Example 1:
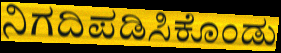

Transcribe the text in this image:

ನಿಗದಿಪಡಿಸಿಕೊಂಡು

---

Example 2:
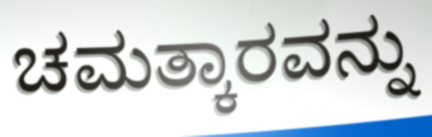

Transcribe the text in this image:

ಚಮತ್ಕಾರವನ್ನು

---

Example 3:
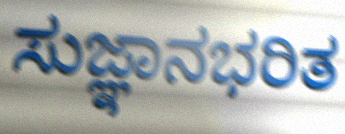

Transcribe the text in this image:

ಸುಜ್ಞಾನಭರಿತ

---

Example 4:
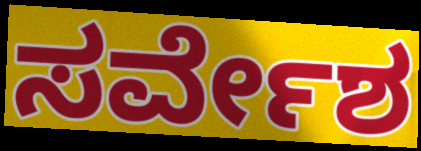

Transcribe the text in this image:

ಸರ್ವೇಶ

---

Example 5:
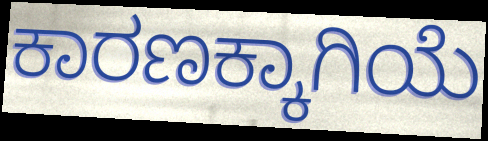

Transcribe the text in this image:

ಕಾರಣಕ್ಕಾಗಿಯೆ